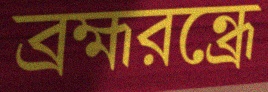
ব্রহ্মরন্ধ্রে